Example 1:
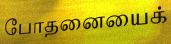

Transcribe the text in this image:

போதனையைக்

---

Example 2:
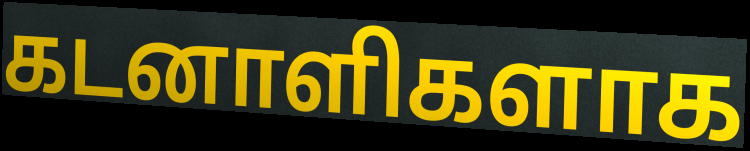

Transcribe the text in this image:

கடனாளிகளாக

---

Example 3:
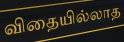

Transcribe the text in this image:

விதையில்லாத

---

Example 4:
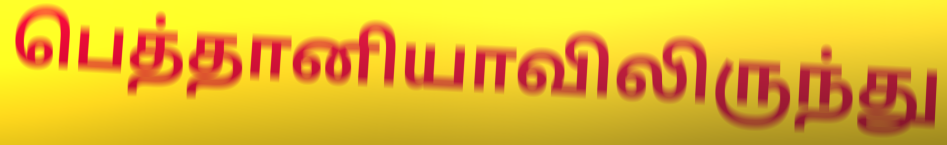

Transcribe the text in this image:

பெத்தானியாவிலிருந்து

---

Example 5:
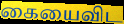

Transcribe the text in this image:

கையைவிட